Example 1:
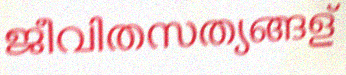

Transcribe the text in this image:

ജീവിതസത്യങ്ങള്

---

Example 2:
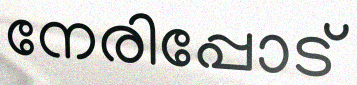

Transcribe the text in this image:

നേരിപ്പോട്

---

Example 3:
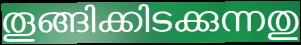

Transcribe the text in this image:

തൂങ്ങിക്കിടക്കുന്നതു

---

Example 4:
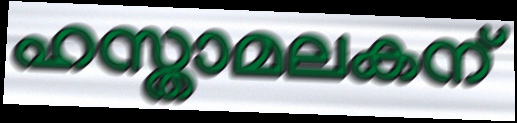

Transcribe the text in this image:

ഹസ്താമലകന്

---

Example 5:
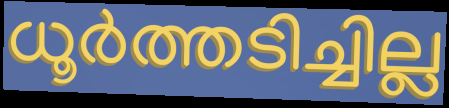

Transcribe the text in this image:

ധൂർത്തടിച്ചില്ല